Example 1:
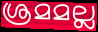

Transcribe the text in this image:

ശ്രമമല്ല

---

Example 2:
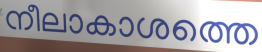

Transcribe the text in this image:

നീലാകാശത്തെ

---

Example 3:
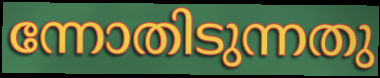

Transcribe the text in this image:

ന്നോതിടുന്നതു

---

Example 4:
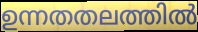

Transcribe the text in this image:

ഉന്നതതലത്തിൽ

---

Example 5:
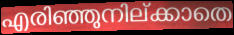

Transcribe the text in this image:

എരിഞ്ഞുനില്ക്കാതെ